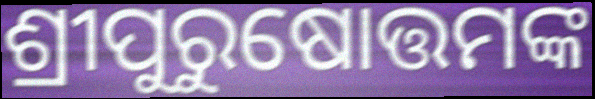
ଶ୍ରୀପୁରୁଷୋତ୍ତମଙ୍କ